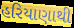
હરિયાણાથી